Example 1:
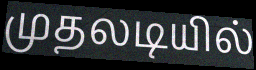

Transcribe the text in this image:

முதலடியில்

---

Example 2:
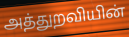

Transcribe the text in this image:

அத்துறவியின்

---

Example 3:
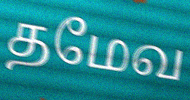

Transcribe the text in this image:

தமேவ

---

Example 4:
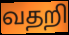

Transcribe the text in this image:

வதறி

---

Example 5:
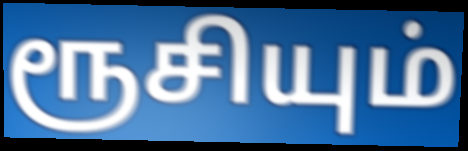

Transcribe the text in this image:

ரூசியும்